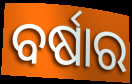
ବର୍ଷାର